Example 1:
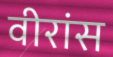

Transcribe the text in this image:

वीरांस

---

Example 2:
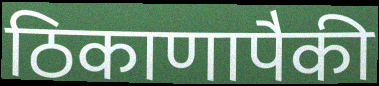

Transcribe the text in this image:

ठिकाणापैकी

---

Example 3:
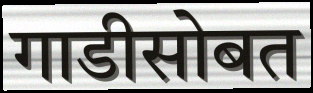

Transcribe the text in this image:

गाडीसोबत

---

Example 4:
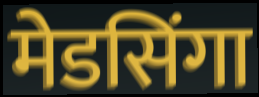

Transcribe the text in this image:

मेडसिंगा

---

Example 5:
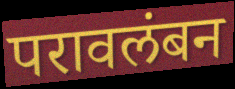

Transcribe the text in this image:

परावलंबन